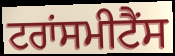
ਟਰਾਂਸਮੀਟੈਂਸ